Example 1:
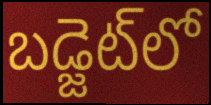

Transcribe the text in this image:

బడ్జెట్‌లో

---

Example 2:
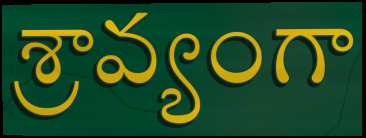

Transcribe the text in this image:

శ్రావ్యంగా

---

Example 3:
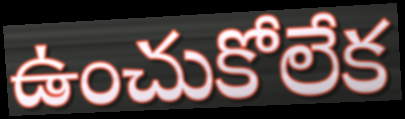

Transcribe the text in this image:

ఉంచుకోలేక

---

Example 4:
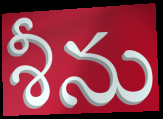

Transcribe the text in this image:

శీను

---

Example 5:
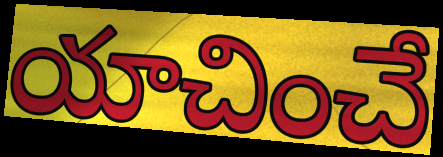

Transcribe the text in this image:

యాచించే